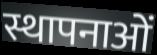
स्थापनाओं